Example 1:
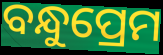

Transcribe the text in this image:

ବନ୍ଧୁପ୍ରେମ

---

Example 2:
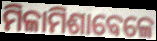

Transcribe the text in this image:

ମିଳାମିଶାବେଳେ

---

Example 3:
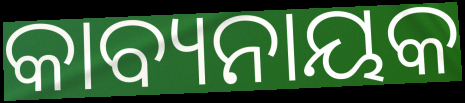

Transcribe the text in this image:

କାବ୍ୟନାୟକ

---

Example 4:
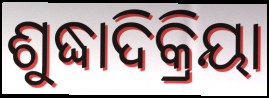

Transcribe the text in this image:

ଶୁଦ୍ଧାଦିକ୍ରିୟା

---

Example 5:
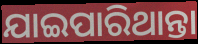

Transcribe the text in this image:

ଯାଇପାରିଥାନ୍ତା